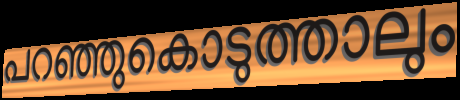
പറഞ്ഞുകൊടുത്താലും